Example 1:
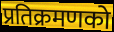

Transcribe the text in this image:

प्रतिक्रमणको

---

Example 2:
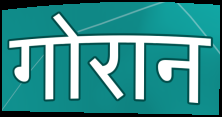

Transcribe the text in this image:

गोरान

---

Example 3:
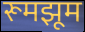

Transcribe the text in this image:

रूमझूम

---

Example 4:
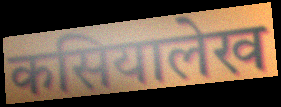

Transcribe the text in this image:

कसियालेख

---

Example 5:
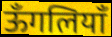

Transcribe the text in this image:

ऊँगलियाँ